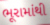
ભૂરામાંથી